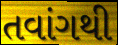
તવાંગથી